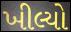
ખીલ્યો